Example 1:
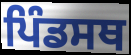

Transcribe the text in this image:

ਪਿੰਡਸਥ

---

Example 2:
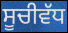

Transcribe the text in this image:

ਸੂਚੀਵੱਧ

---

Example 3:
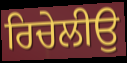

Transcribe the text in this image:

ਰਿਚੇਲੀਉ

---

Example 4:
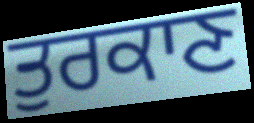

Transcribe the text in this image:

ਤੁਰਕਾਣ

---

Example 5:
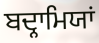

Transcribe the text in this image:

ਬਦ੍ਨਾਮਿਯਾਂ